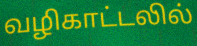
வழிகாட்டலில்